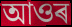
আওৰ